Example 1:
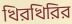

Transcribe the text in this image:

খিরখিরির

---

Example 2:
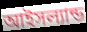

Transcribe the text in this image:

আইসল্যান্ড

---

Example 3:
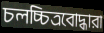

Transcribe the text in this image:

চলচ্চিত্রবোদ্ধারা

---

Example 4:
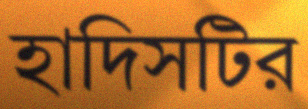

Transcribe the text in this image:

হাদিসটির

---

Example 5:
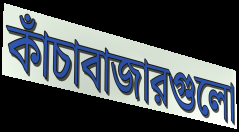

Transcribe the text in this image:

কাঁচাবাজারগুলো